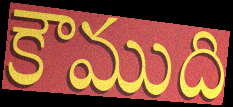
కౌముది